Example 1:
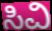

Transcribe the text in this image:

ಸಿವಿ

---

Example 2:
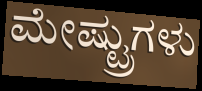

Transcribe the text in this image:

ಮೇಷ್ಟ್ರುಗಳು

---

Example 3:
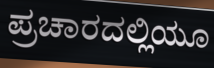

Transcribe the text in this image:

ಪ್ರಚಾರದಲ್ಲಿಯೂ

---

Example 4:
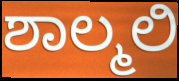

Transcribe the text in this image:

ಶಾಲ್ಮಲಿ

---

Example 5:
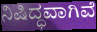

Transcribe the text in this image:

ನಿಷಿದ್ಧವಾಗಿವೆ